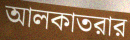
আলকাতরার